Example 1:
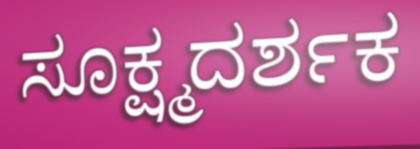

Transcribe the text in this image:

ಸೂಕ್ಷ್ಮದರ್ಶಕ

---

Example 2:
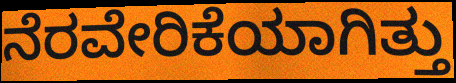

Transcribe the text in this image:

ನೆರವೇರಿಕೆಯಾಗಿತ್ತು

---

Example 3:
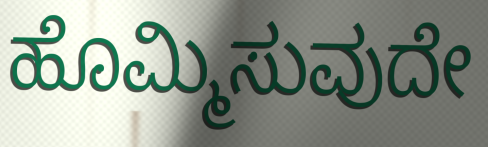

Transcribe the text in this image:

ಹೊಮ್ಮಿಸುವುದೇ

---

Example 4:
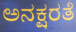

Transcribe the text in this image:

ಅನಕ್ಷರತೆ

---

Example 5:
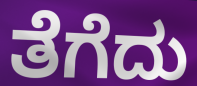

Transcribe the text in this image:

ತೆಗೆದು